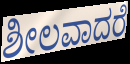
ಶೀಲವಾದರೆ